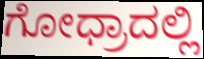
ಗೋಧ್ರಾದಲ್ಲಿ